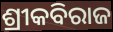
ଶ୍ରୀକବିରାଜ